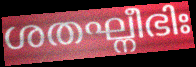
ശതഘ്നീഭിഃ